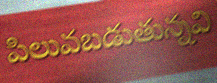
పిలువబడుతున్నవి